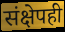
संक्षेपही